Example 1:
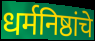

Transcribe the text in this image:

धर्मनिष्ठांचे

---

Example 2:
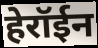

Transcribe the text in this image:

हेरॉईन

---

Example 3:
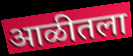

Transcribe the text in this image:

आळीतला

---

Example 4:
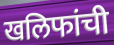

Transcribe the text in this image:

खलिफांची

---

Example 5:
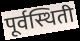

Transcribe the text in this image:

पूर्वस्थिती